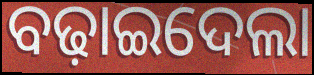
ବଢ଼ାଇଦେଲା